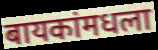
बायकांमधला